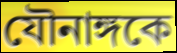
যৌনাঙ্গকে